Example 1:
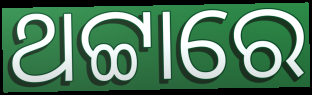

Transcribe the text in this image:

ଥଟ୍ଟାରେ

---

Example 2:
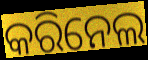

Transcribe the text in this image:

କରିନେଲ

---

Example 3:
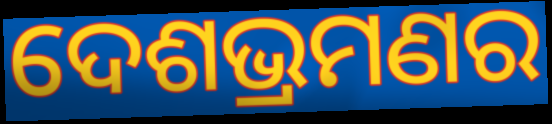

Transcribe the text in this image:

ଦେଶଭ୍ରମଣର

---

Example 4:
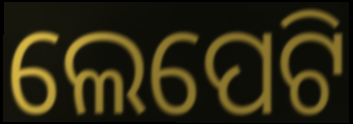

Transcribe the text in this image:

ଲେପେଟି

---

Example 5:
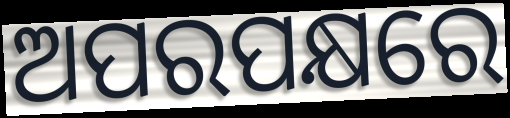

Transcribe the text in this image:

ଅପରପକ୍ଷରେ